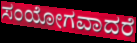
ಸಂಯೋಗವಾದರೆ